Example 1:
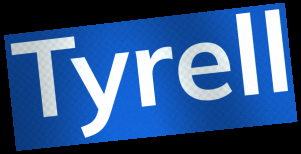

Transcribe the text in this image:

Tyrell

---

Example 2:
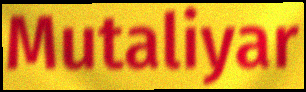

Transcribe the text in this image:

Mutaliyar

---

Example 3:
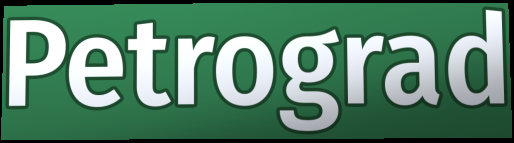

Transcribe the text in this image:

Petrograd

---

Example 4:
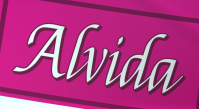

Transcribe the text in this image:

Alvida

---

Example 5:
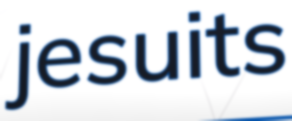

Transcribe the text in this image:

jesuits